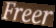
Freer